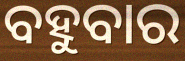
ବହୁବାର